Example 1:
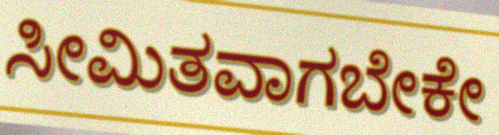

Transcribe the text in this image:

ಸೀಮಿತವಾಗಬೇಕೇ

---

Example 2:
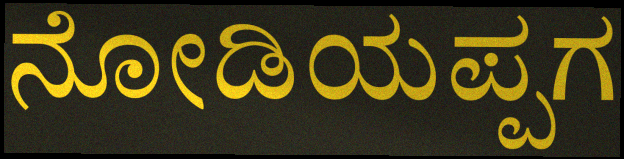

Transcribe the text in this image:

ನೋಡಿಯಪ್ಪಗ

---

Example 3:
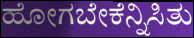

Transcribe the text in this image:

ಹೋಗಬೇಕೆನ್ನಿಸಿತು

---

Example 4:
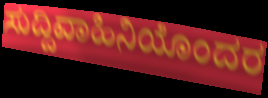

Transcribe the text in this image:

ಸುದ್ದಿವಾಹಿನಿಯೊಂದರ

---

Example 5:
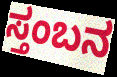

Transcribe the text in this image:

ಸ್ತಂಬನ